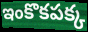
ఇంకొకపక్క